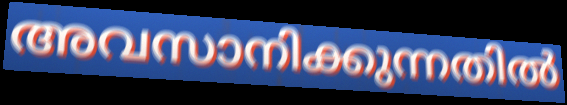
അവസാനിക്കുന്നതിൽ